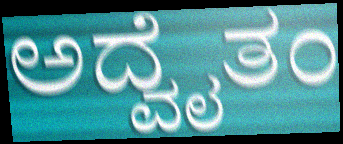
ಅದ್ವೈತಂ